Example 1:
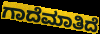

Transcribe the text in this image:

ಗಾದೆಮಾತಿದೆ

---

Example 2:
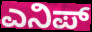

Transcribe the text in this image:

ಎನಿಪ್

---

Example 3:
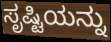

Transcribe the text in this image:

ಸೃಷ್ಟಿಯನ್ನು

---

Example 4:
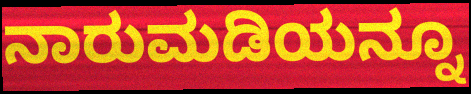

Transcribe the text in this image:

ನಾರುಮಡಿಯನ್ನೂ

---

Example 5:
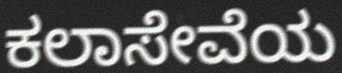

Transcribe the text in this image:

ಕಲಾಸೇವೆಯ